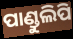
ପାଣ୍ଡୁଲିପି